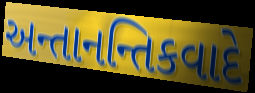
અન્તાનન્તિકવાદે